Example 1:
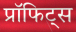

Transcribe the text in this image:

प्रॉफिट्स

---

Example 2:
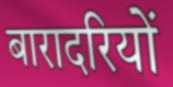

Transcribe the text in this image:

बारादरियों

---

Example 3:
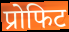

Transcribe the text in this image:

प्रोफिट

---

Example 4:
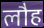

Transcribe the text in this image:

लौह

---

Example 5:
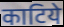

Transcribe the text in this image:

काटिये